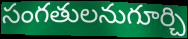
సంగతులనుగూర్చి